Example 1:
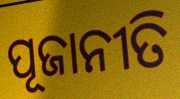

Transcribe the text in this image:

ପୂଜାନୀତି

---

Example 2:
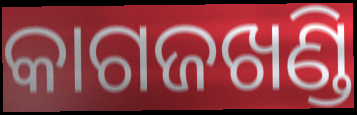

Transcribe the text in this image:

କାଗଜଖଣ୍ଡି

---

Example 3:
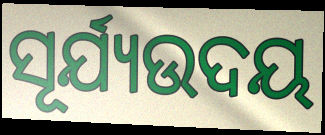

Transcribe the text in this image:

ସୂର୍ଯ୍ୟଉଦୟ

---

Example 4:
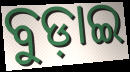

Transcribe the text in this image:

ବୁଡ଼ାଇ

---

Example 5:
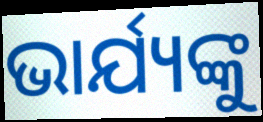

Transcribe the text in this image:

ଭାର୍ଯ୍ୟଙ୍କୁ